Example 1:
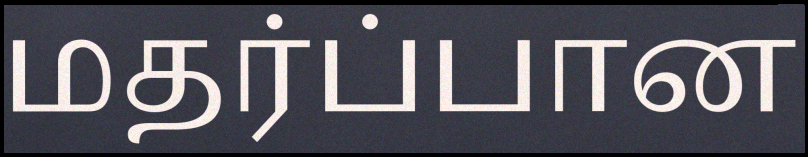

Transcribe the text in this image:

மதர்ப்பான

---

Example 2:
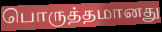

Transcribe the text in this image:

பொருத்தமானது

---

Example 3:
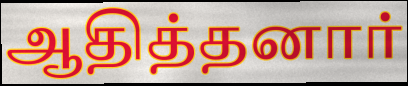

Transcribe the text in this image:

ஆதித்தனார்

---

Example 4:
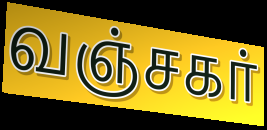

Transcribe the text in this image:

வஞ்சகர்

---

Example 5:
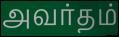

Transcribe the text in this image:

அவர்தம்